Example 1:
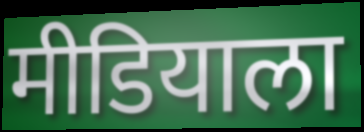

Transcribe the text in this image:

मीडियाला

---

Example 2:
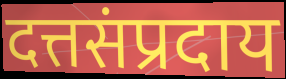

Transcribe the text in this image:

दत्तसंप्रदाय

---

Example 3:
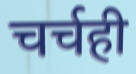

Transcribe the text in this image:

चर्चही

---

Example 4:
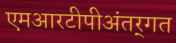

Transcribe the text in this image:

एमआरटीपीअंतर्गत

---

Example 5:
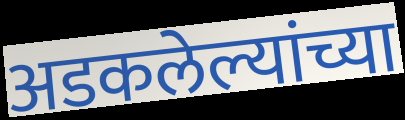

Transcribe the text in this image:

अडकलेल्यांच्या